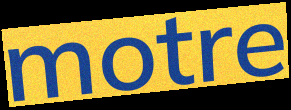
motre